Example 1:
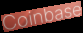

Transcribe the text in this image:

Coinbase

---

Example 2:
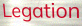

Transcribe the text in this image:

Legation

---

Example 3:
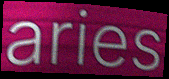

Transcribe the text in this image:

aries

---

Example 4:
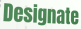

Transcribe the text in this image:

Designate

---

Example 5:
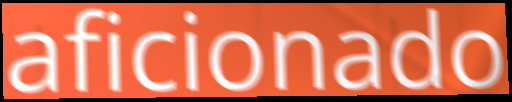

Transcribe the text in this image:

aficionado